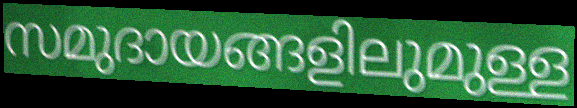
സമുദായങ്ങളിലുമുള്ള